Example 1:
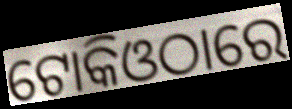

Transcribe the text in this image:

ଟୋକିଓଠାରେ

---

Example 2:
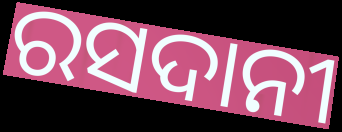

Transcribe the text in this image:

ରସଦାନୀ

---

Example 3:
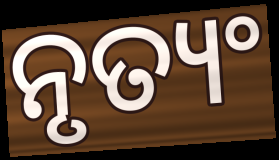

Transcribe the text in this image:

ନୃତ୍ୟଂ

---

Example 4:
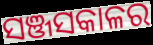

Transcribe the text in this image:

ସଞ୍ଜସକାଳର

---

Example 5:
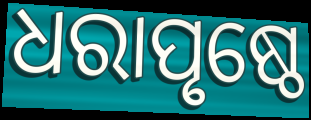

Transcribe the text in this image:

ଧରାପୃଷ୍ଠେ